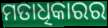
ମତାଧିକାରର